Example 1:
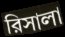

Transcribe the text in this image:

রিসালা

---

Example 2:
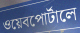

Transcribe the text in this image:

ওয়েবপোর্টালে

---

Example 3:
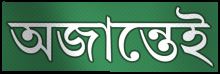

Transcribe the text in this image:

অজান্তেই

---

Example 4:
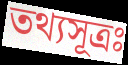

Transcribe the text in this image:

তথ্যসূত্রঃ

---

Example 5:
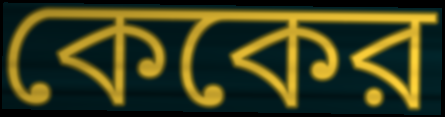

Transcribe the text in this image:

কেকের